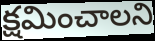
క్షమించాలని